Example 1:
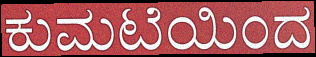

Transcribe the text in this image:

ಕುಮಟೆಯಿಂದ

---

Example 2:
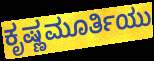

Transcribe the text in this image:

ಕೃಷ್ಣಮೂರ್ತಿಯು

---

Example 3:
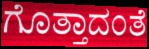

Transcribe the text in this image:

ಗೊತ್ತಾದಂತೆ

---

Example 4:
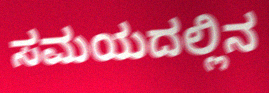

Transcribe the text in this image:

ಸಮಯದಲ್ಲಿನ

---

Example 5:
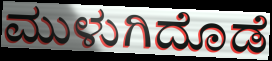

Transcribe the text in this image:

ಮುಳುಗಿದೊಡೆ